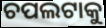
ଚପଲଟାକୁ